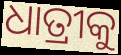
ଧାତ୍ରୀକୁ